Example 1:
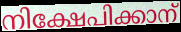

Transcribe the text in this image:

നിക്ഷേപിക്കാന്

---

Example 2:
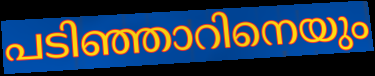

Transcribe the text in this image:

പടിഞ്ഞാറിനെയും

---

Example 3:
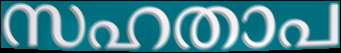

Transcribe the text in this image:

സഹതാപ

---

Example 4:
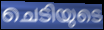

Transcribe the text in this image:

ചെടിയുടെ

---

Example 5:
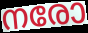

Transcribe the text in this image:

നരോ